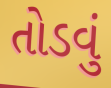
તોડવું